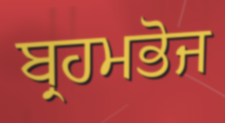
ਬ੍ਰਹਮਭੋਜ